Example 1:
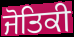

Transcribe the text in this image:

ਜੋਤਿਕੀ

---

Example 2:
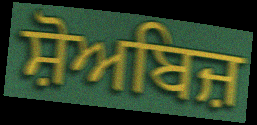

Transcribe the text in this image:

ਸ਼ੋਅਬਿਜ਼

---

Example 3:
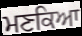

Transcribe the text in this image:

ਮਣਕਿਆ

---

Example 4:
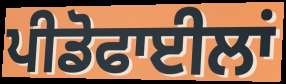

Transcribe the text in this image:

ਪੀਡੋਫਾਈਲਾਂ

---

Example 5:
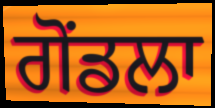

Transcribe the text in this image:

ਗੋਂਡਲਾ